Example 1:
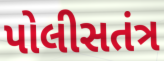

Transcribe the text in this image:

પોલીસતંત્ર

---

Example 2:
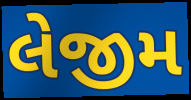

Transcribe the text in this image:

લેજીમ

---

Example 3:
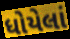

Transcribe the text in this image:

ધોયેલાં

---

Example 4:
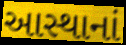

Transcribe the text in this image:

આસ્થાનાં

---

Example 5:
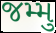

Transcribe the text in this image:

જમ્મુ